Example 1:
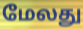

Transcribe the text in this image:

மேலது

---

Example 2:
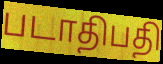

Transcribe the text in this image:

படாதிபதி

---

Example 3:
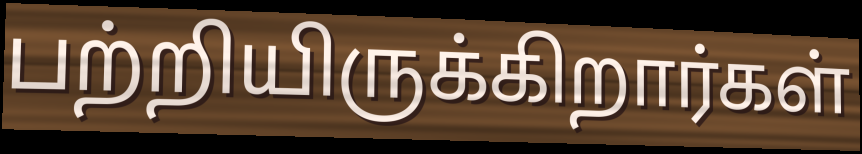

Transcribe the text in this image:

பற்றியிருக்கிறார்கள்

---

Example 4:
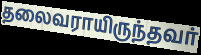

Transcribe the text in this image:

தலைவராயிருந்தவர்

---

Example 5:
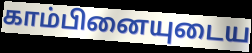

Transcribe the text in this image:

காம்பினையுடைய